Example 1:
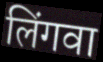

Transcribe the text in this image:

लिंगवा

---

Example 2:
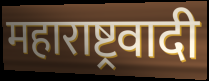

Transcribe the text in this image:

महाराष्ट्रवादी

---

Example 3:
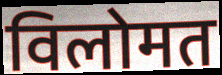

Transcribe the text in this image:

विलोमत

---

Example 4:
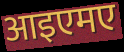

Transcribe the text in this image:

आइएमए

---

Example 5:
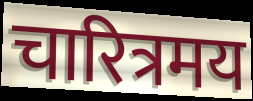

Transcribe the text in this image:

चारित्रमय